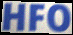
HFO